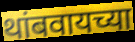
थांबवायच्या